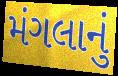
મંગલાનું